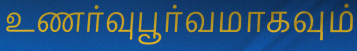
உணர்வுபூர்வமாகவும்